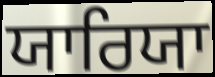
ਯਾਰਿਯਾ